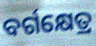
ବର୍ଗକ୍ଷେତ୍ର